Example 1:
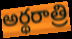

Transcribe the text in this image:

అర్థరాత్రి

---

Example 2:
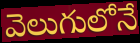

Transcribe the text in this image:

వెలుగులోనే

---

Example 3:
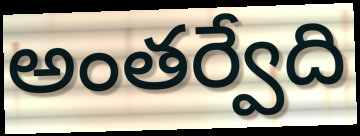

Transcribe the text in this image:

అంతర్వేది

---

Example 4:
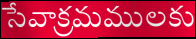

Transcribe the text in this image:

సేవాక్రమములకు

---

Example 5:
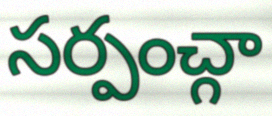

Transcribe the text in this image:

సర్పంచ్గా